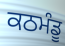
ਕਠਮੰਡੂ